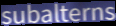
subalterns